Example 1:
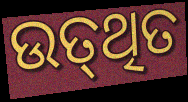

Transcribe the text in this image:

ଉତ୍‌ଥିତ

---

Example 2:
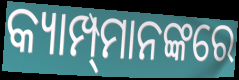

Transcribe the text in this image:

କ୍ୟାମ୍ପ୍‍ମାନଙ୍କରେ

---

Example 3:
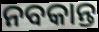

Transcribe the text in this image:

ନବକାନ୍ତ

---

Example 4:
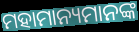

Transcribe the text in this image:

ମହାମାନ୍ୟମାନଙ୍କ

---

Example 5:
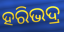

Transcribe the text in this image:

ହରିଭଦ୍ର